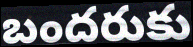
బందరుకు